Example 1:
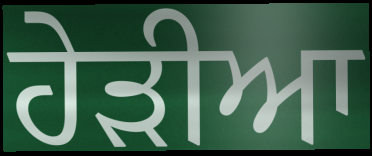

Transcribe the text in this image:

ਹੇੜੀਆ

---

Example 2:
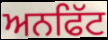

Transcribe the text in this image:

ਅਨਫਿੱਟ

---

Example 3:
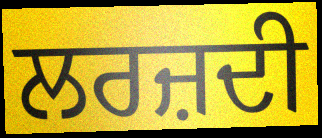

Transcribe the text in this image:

ਲਰਜ਼ਦੀ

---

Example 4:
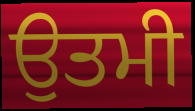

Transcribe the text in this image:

ਉਤਮੀ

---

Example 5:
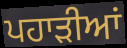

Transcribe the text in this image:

ਪਹਾਡ਼ੀਆਂ